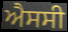
ਐਸਸੀ